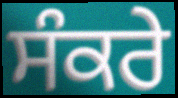
ਸੰਕਰੇ